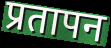
प्रतापन